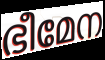
ഭീമേന